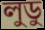
লুডু